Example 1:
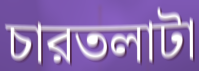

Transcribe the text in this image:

চারতলাটা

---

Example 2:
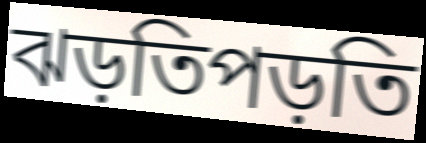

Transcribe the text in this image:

ঝড়তিপড়তি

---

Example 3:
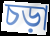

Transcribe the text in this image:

চড়া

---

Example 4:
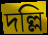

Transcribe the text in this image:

দল্লি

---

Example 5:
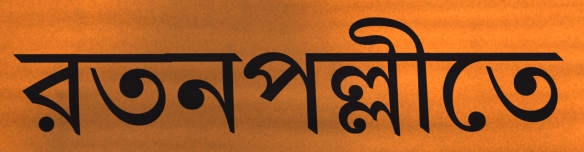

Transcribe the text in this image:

রতনপল্লীতে